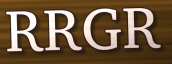
RRGR